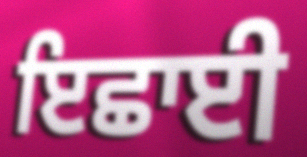
ਇਛਾਈ